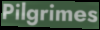
Pilgrimes